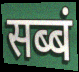
सब्बं